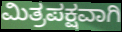
ಮಿತ್ರಪಕ್ಷವಾಗಿ